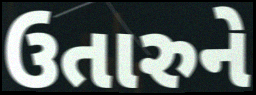
ઉતારુને